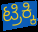
ಟ್ರಿಕ್ಕಿ